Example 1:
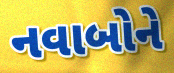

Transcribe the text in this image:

નવાબોને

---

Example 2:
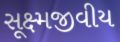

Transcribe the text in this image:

સૂક્ષ્મજીવીય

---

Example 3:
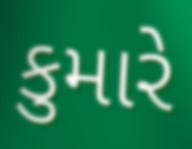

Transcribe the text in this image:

કુમારે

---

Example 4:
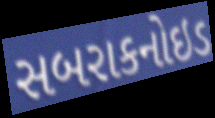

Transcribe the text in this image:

સબરાકનોઇડ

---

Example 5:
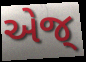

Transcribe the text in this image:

એજ્